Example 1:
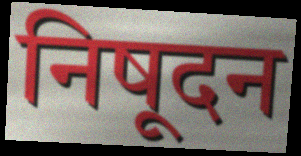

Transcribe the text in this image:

निषूदन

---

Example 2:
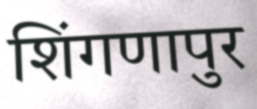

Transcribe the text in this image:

शिंगणापुर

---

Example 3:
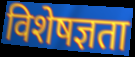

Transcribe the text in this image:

विशेषज्ञता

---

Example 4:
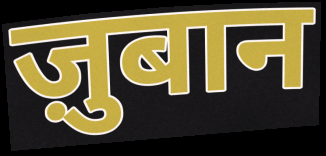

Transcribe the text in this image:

ज़ुबान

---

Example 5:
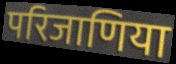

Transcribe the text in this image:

परिजाणिया